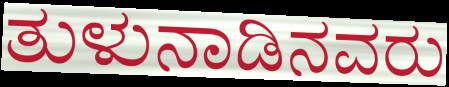
ತುಳುನಾಡಿನವರು